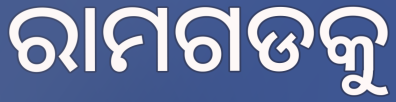
ରାମଗଡକୁ